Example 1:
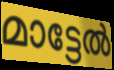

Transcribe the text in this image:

മാട്ടേൽ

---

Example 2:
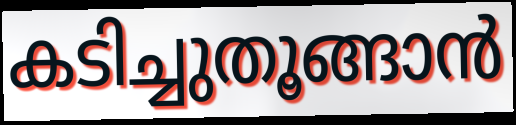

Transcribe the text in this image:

കടിച്ചുതൂങ്ങാൻ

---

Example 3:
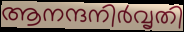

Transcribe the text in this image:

ആനന്ദനിർവൃതി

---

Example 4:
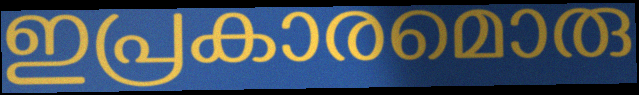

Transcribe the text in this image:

ഇപ്രകാരമൊരു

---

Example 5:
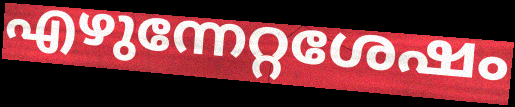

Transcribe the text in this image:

എഴുന്നേറ്റശേഷം